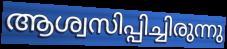
ആശ്വസിപ്പിച്ചിരുന്നു